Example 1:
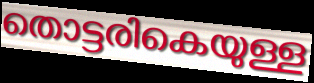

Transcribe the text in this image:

തൊട്ടരികെയുള്ള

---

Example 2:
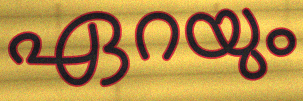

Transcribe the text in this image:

ഏറയും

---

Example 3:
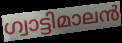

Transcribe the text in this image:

ഗ്വാട്ടിമാലൻ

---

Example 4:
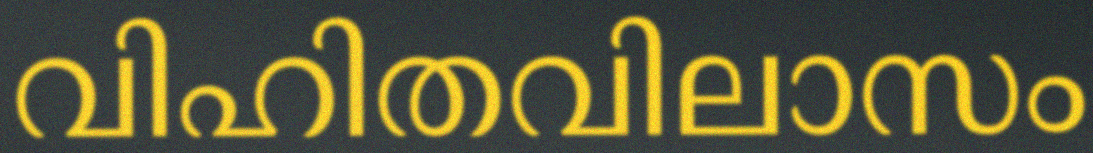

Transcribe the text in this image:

വിഹിതവിലാസം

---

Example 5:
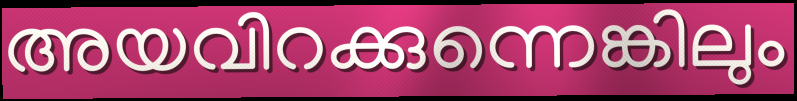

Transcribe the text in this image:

അയവിറക്കുന്നെങ്കിലും